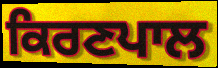
ਕਿਰਣਪਾਲ